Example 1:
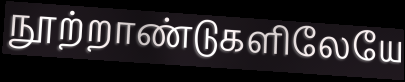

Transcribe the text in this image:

நூற்றாண்டுகளிலேயே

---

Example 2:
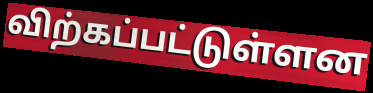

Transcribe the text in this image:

விற்கப்பட்டுள்ளன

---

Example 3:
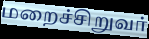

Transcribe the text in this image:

மறைச்சிறுவர்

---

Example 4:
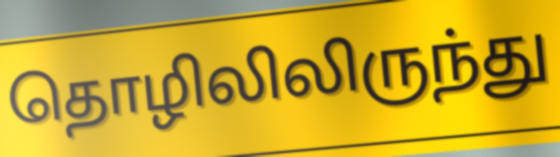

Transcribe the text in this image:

தொழிலிலிருந்து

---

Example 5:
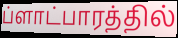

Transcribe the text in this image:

ப்ளாட்பாரத்தில்